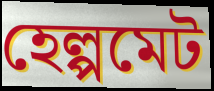
হেল্পমেট